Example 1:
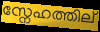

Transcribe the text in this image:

സ്നേഹത്തില്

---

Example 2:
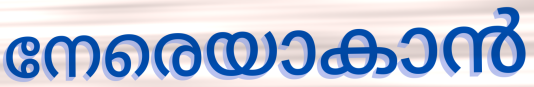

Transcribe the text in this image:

നേരെയാകാൻ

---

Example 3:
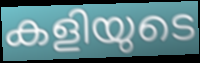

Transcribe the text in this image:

കളിയുടെ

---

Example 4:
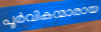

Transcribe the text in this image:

പൂർവികന്മാരായ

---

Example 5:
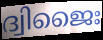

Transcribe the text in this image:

ദ്വിജൈഃ